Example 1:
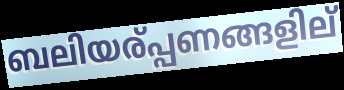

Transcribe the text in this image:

ബലിയര്പ്പണങ്ങളില്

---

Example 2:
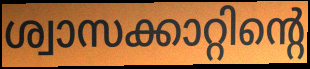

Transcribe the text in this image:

ശ്വാസക്കാറ്റിന്റെ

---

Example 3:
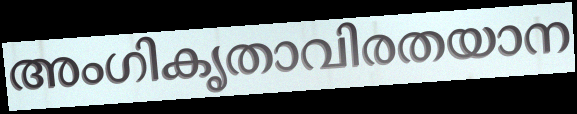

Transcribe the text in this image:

അംഗികൃതാവിരതയാന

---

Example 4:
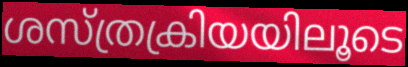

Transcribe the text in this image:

ശസ്ത്രക്രിയയിലൂടെ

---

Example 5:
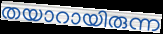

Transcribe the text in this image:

തയാറായിരുന്ന